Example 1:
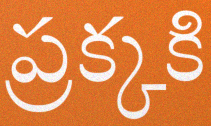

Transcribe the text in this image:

ప్రక్కకి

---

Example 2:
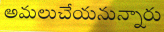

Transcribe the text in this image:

అమలుచేయనున్నారు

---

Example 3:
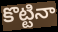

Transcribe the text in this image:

కొట్టినా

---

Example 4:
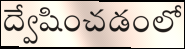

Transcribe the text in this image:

ద్వేషించడంలో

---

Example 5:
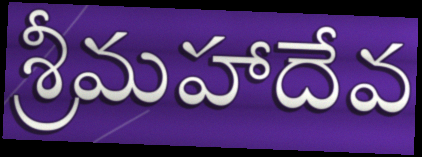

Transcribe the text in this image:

శ్రీమహాదేవ